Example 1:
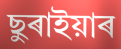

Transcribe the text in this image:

ছুৰাইয়াৰ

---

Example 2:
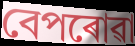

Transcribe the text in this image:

বেপৰোৱা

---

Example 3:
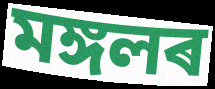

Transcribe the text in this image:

মঙ্গলৰ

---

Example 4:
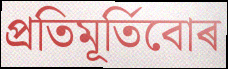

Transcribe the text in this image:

প্ৰতিমূৰ্তিবোৰ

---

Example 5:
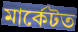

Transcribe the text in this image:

মাৰ্কেটত